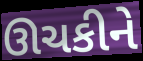
ઊચકીને